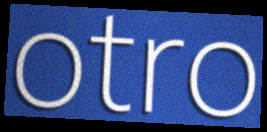
otro